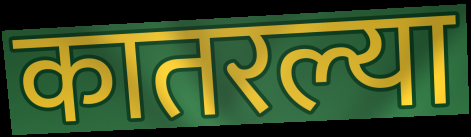
कातरल्या